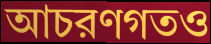
আচরণগতও